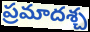
ప్రమాదశ్చ